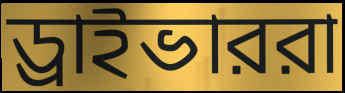
ড্রাইভাররা